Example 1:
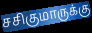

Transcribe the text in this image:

சசிகுமாருக்கு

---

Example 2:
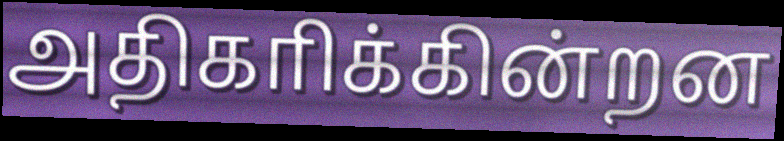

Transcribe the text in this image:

அதிகரிக்கின்றன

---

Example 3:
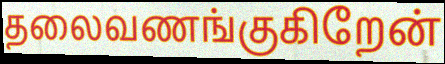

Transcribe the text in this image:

தலைவணங்குகிறேன்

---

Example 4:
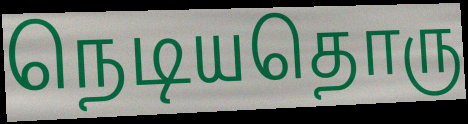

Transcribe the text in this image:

நெடியதொரு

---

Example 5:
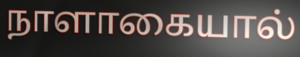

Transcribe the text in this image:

நாளாகையால்